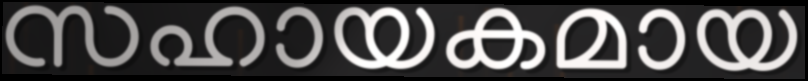
സഹായകമായ